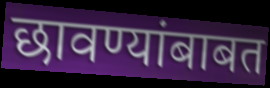
छावण्यांबाबत